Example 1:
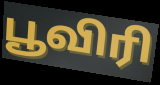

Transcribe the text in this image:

பூவிரி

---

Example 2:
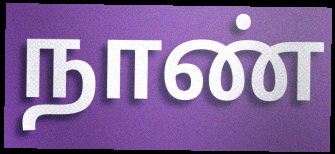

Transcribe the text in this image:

நாண்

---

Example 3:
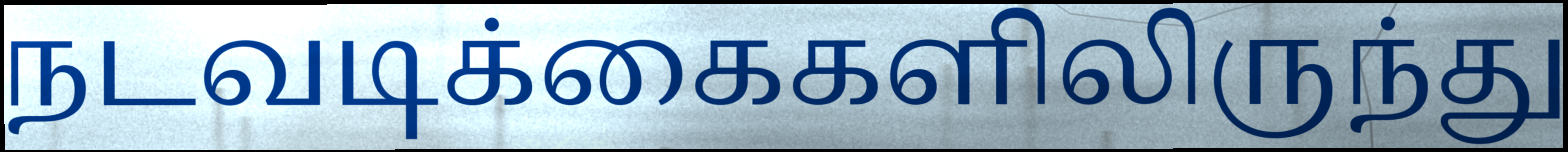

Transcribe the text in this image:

நடவடிக்கைகளிலிருந்து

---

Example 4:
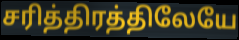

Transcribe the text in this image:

சரித்திரத்திலேயே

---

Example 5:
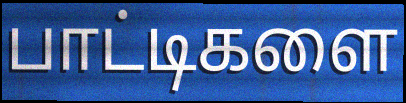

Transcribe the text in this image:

பாட்டிகளை